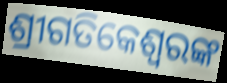
ଶ୍ରୀଗତିକେଶ୍ବରଙ୍କ